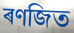
ৰণজিত